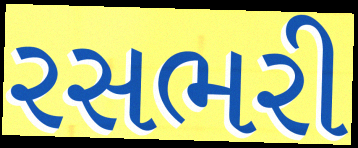
રસભરી